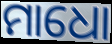
ମାଧୋ